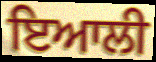
ਇਆਲੀ